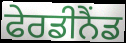
ਫੇਰਡੀਨੈਂਡ